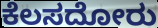
ಕೆಲಸದೋರು